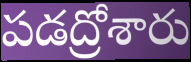
పడద్రోశారు